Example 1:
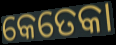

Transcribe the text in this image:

କେତେକା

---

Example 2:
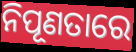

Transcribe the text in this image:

ନିପୂଣତାରେ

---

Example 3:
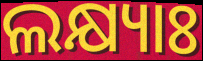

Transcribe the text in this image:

ଲକ୍ଷ୍ୟାଃ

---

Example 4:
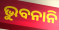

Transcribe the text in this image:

ଭୁବନାନି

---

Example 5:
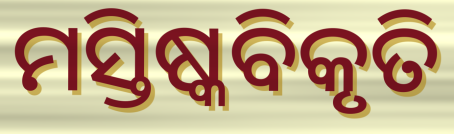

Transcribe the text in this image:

ମସ୍ତିଷ୍କବିକୃତି